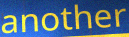
another